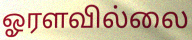
ஓரளவில்லை